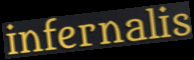
infernalis